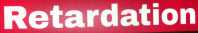
Retardation